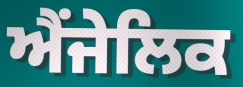
ਐਂਜੇਲਿਕ